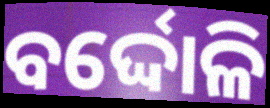
ବର୍ଦ୍ଦୋଳି